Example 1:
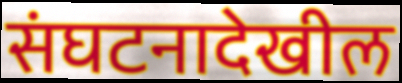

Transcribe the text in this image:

संघटनादेखील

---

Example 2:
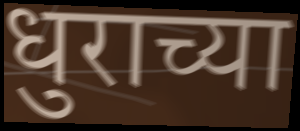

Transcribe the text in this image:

धुराच्या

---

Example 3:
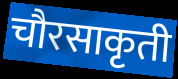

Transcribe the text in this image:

चौरसाकृती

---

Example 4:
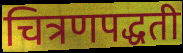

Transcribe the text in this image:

चित्रणपद्धती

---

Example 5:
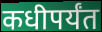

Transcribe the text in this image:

कधीपर्यंत